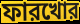
ফারখোর